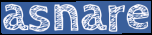
asnare